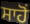
ਸਾਹੋਂ